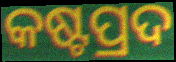
କଷ୍ଟପ୍ରଦ